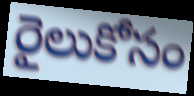
రైలుకోసం